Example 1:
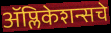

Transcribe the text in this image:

ॲप्लिकेशन्सचे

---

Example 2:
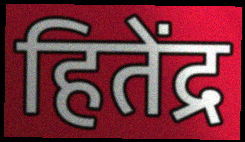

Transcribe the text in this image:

हितेंद्र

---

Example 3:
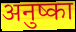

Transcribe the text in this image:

अनुष्का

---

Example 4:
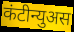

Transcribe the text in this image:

कंटीन्युअस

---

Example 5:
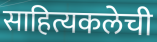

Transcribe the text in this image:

साहित्यकलेची